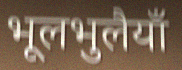
भूलभुलैयाँ